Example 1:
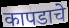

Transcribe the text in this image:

कापडाचे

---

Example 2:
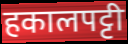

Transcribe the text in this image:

हकालपट्टी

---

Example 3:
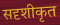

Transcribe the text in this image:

सदृशीकृत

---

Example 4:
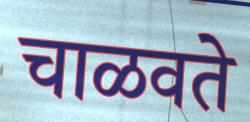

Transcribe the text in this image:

चाळवते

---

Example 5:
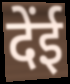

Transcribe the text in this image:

देंई